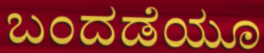
ಬಂದಡೆಯೂ